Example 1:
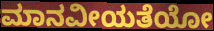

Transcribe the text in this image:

ಮಾನವೀಯತೆಯೋ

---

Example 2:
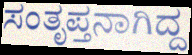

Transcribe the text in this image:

ಸಂತೃಪ್ತನಾಗಿದ್ದ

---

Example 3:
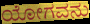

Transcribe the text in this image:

ಯೋಗವನು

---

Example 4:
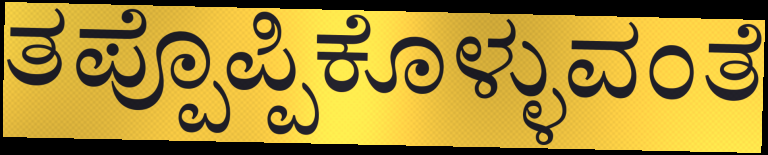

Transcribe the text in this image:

ತಪ್ಪೊಪ್ಪಿಕೊಳ್ಳುವಂತೆ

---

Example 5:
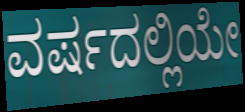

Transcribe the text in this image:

ವರ್ಷದಲ್ಲಿಯೇ